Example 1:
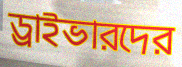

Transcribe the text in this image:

ড্রাইভারদের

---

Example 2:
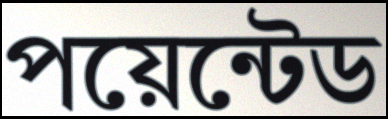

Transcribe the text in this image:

পয়েন্টেড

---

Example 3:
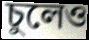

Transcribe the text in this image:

চুলেও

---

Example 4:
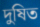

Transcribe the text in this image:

দুষিত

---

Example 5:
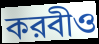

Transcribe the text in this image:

করবীও